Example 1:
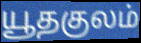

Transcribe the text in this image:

யூதகுலம்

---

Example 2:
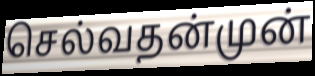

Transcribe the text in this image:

செல்வதன்முன்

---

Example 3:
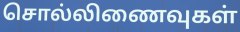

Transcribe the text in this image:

சொல்லிணைவுகள்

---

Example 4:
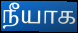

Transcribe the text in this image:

நீயாக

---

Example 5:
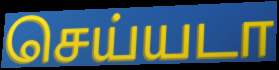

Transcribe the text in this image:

செய்யடா